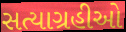
સત્યાગ્રહીઓ